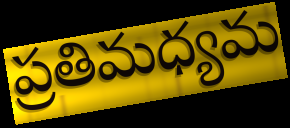
ప్రతిమధ్యమ